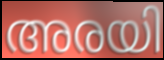
അരയി